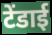
टेंडाई